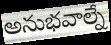
అనుభవాల్నే